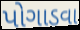
પોગાડવા